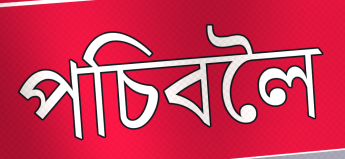
পচিবলৈ